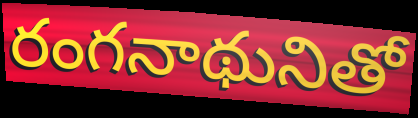
రంగనాథునితో